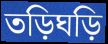
তড়িঘড়ি